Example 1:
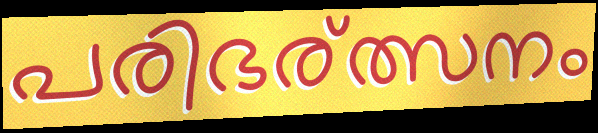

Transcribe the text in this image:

പരിഭര്ത്സനം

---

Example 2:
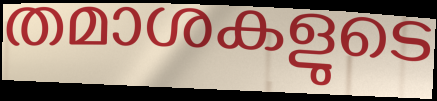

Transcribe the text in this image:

തമാശകളുടെ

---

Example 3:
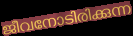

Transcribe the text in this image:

ജീവനോടിരിക്കുന്ന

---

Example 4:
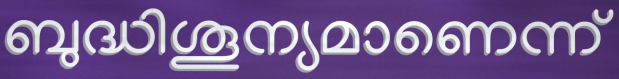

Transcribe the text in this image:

ബുദ്ധിശൂന്യമാണെന്ന്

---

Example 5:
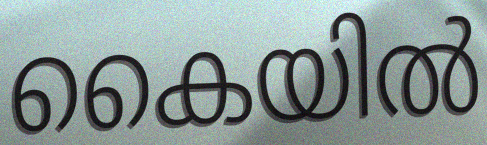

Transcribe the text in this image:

കൈയിൽ